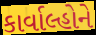
કાર્વાલ્હોને